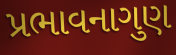
પ્રભાવનાગુણ